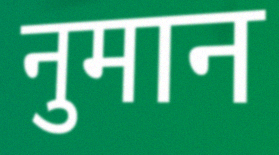
नुमान